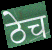
ठेच